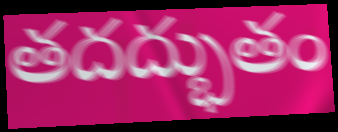
తదద్భుతం